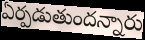
ఏర్పడుతుందన్నారు